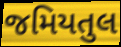
જમિયતુલ